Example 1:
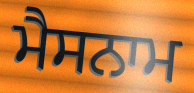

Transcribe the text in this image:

ਮੈਸਨਾਮ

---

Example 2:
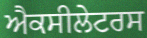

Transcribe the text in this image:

ਐਕਸੀਲੇਟਰਸ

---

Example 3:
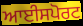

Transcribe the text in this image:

ਆਈਸਪੋਰਟ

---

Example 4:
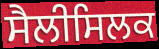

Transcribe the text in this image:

ਸੈਲੀਸਿਲਕ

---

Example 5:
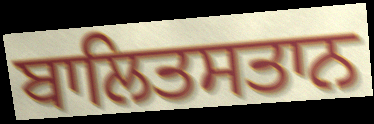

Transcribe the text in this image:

ਬਾਲਿਤਸਤਾਨ